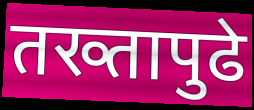
तख्तापुढे